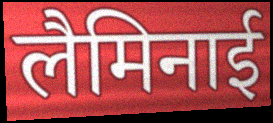
लैमिनाई